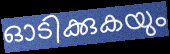
ഓടിക്കുകയും